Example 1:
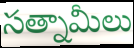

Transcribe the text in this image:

సత్నామీలు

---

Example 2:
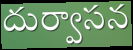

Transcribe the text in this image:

దుర్వాసన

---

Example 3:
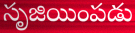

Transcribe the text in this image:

సృజియింపడు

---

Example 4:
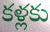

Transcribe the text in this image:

కళ్లకు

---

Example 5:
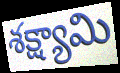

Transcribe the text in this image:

శక్ష్యామి